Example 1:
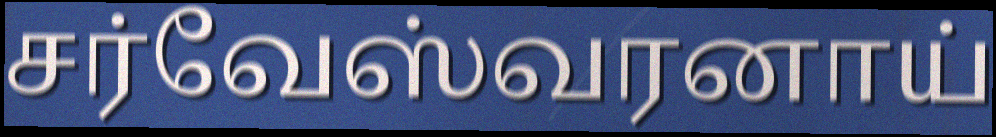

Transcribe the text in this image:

சர்வேஸ்வரனாய்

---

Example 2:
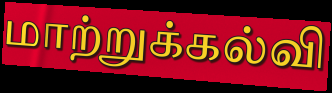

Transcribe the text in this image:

மாற்றுக்கல்வி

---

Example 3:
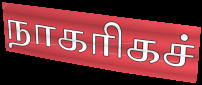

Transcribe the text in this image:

நாகரிகச்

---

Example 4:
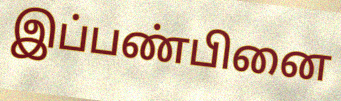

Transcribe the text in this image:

இப்பண்பினை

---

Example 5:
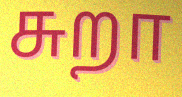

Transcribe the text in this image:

சுறா